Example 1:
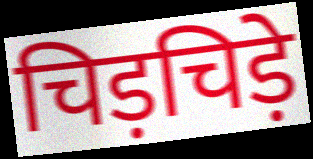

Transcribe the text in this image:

चिड़चिड़े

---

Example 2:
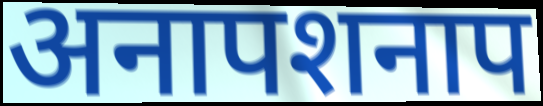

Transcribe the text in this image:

अनापशनाप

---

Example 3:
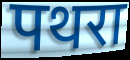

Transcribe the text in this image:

पथरा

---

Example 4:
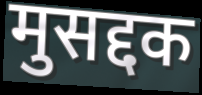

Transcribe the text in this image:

मुसद्दक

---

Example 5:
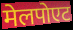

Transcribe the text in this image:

मेलपोएट